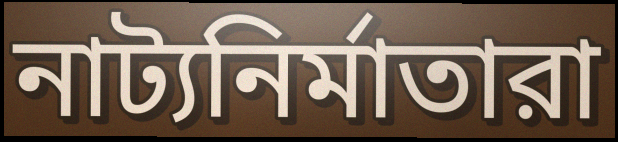
নাট্যনির্মাতারা